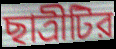
ছাত্রীটির